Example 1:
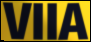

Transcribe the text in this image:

VIIA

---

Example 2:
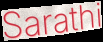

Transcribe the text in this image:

Sarathi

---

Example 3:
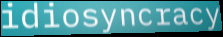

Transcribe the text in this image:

idiosyncracy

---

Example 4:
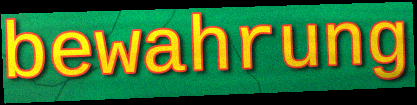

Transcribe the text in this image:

bewahrung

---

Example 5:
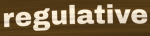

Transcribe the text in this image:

regulative